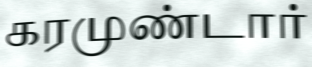
கரமுண்டார்